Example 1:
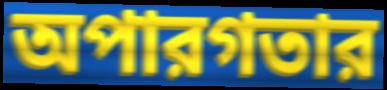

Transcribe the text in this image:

অপারগতার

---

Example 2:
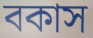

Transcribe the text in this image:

বকাস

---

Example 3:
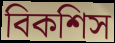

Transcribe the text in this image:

বিকশিস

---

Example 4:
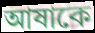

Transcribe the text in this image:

আষাকে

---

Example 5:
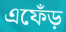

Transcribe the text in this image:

এফেঁড়